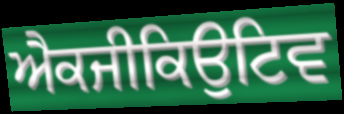
ਐਕਜੀਕਿਉਟਿਵ